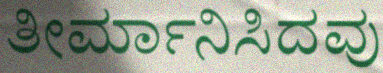
ತೀರ್ಮಾನಿಸಿದವು